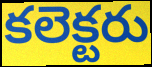
కలెక్టరు